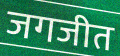
जगजीत